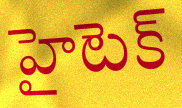
హైటెక్